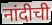
नांदीची